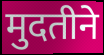
मुदतीने